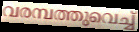
വരമ്പത്തുവെച്ച്